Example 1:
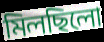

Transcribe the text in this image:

মিলছিলো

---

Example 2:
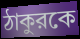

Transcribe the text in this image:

ঠাকুরকে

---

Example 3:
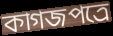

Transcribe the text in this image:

কাগজপত্রে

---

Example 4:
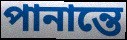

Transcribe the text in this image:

পানান্তে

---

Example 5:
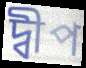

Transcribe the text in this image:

দ্বীপ